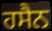
ਹਸੈਨ